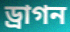
ড্রাগন